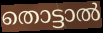
തൊട്ടാൽ